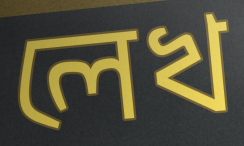
লেখ